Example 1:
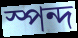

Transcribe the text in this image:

স্পন্দ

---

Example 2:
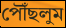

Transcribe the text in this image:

পৌঁছলুম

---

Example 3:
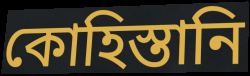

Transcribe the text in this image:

কোহিস্তানি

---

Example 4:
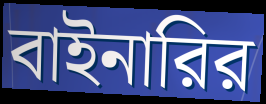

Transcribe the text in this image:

বাইনারির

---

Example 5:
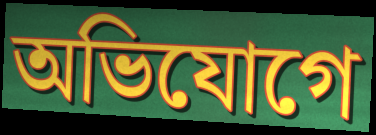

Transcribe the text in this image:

অভিযোগে